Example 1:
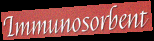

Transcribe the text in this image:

Immunosorbent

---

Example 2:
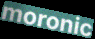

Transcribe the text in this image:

moronic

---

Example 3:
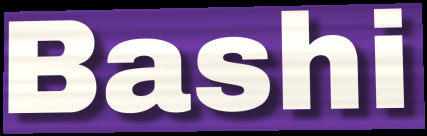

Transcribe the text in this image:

Bashi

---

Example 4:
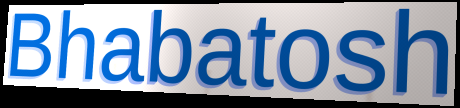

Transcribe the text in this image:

Bhabatosh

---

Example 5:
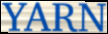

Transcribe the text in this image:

YARN